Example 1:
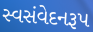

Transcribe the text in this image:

સ્વસંવેદનરૂપ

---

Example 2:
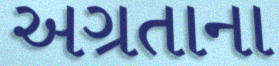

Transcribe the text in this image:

અગ્રતાના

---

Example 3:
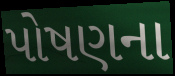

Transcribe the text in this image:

પોષણના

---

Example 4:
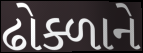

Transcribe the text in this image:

ઢોક્ળાને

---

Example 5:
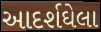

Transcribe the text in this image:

આદર્શઘેલા